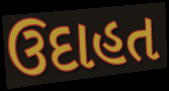
ઉદાહત